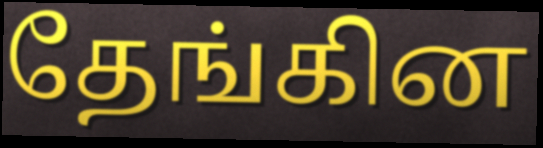
தேங்கின